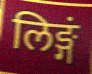
लिङ्गं